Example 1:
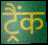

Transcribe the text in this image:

ट्रैंक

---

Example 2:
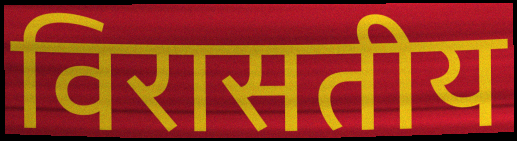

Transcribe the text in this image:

विरासतीय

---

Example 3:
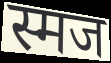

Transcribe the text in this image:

स्मज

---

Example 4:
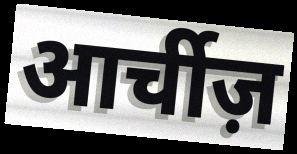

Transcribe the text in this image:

आर्चीज़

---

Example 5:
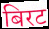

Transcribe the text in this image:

बिरट